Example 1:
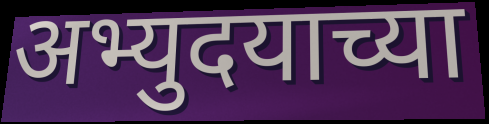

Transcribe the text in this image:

अभ्युदयाच्या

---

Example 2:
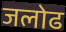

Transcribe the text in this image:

जलोढ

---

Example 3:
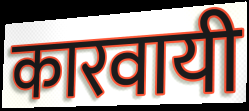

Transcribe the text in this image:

कारवायी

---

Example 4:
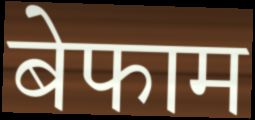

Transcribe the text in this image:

बेफाम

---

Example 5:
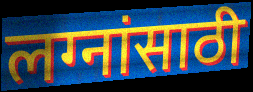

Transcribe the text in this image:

लग्नांसाठी